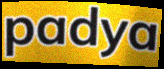
padya